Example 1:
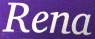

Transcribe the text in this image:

Rena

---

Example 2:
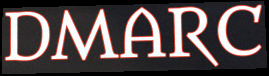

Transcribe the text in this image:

DMARC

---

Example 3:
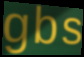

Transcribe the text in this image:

gbs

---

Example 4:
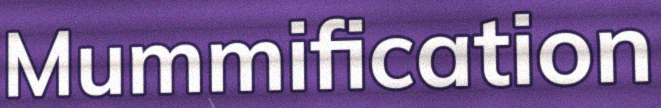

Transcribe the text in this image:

Mummification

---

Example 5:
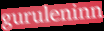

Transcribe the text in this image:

guruleninn